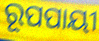
ରୂପପାୟୀ